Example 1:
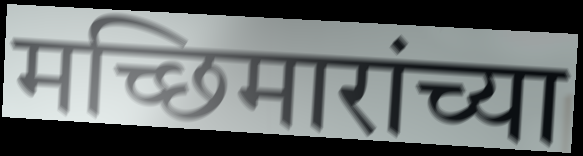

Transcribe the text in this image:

मच्छिमारांच्या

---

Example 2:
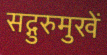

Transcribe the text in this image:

सद्गुरुमुखें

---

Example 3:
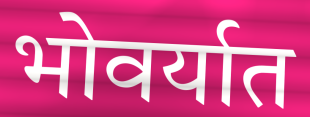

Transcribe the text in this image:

भोवर्यात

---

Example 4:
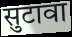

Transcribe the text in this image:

सुटावा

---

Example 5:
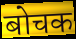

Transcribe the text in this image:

बोचक